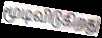
மூடிவிடுகிறது